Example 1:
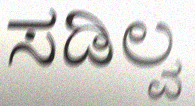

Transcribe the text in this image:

ಸಡಿಲ್ವ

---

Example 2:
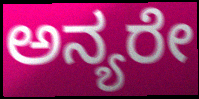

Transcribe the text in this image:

ಅನ್ಯರೇ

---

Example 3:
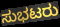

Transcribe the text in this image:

ಸುಭಟರು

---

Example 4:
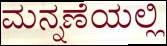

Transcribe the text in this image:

ಮನ್ನಣೆಯಲ್ಲಿ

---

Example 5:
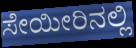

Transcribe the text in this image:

ಸೇಯೀರಿನಲ್ಲಿ